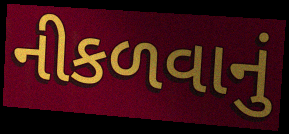
નીકળવાનું